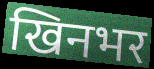
खिनभर